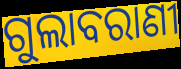
ଗୁଲାବରାଣୀ